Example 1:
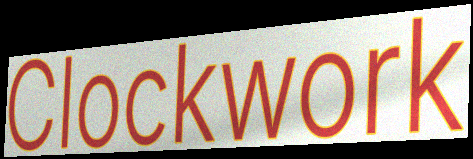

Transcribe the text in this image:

Clockwork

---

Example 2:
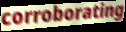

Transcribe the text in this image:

corroborating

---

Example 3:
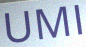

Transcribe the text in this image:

UMI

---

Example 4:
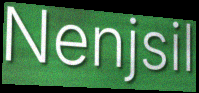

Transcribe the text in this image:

Nenjsil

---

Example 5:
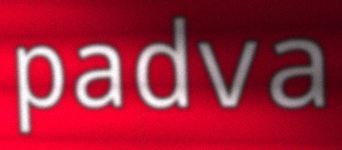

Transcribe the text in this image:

padva